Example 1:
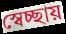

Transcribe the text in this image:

স্বেচ্ছায়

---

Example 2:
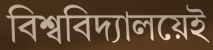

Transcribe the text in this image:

বিশ্ববিদ্যালয়েই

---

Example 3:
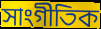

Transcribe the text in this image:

সাংগীতিক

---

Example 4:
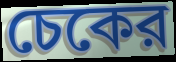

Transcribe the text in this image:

চেকের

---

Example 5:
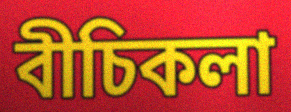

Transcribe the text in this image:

বীচিকলা